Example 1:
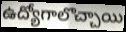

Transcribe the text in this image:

ఉద్యోగాలొచ్చాయి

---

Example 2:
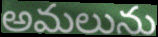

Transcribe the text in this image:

అమలును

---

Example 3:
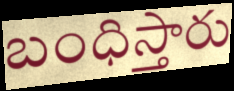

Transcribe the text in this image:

బంధిస్తారు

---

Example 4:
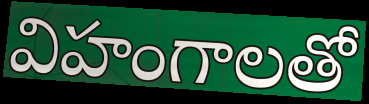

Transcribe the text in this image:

విహంగాలతో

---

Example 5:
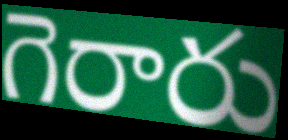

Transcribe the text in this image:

గెరారు